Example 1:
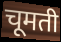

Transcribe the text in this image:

चूमती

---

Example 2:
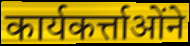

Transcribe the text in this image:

कार्यकर्त्ताओंने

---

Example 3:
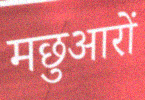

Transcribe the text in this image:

मछुआरों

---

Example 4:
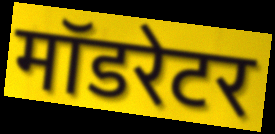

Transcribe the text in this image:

मॉडरेटर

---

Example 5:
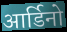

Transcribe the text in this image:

आर्डिनो